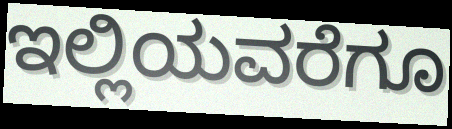
ಇಲ್ಲಿಯವರೆಗೂ